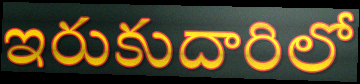
ఇరుకుదారిలో